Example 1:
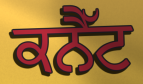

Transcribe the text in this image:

ਕਨੈੱਟ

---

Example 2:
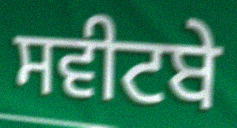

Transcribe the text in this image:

ਸਵੀਟਬੇ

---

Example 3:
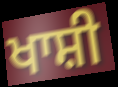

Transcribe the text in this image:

ਖਾਸ਼ੀ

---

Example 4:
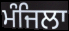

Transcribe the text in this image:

ਮੰਜਿਲਾ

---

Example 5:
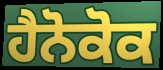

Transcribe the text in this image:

ਹੈਨੋਕੋਕ